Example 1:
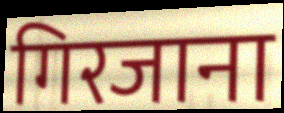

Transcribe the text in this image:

गिरजाना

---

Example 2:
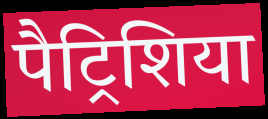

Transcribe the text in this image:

पैट्रिशिया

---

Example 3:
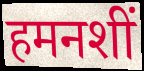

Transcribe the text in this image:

हमनशीं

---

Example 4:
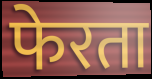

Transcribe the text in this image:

फेरता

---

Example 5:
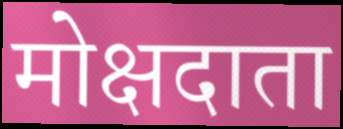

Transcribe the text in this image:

मोक्षदाता